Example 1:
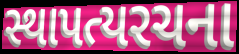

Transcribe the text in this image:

સ્થાપત્યરચના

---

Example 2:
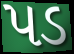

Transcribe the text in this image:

પડ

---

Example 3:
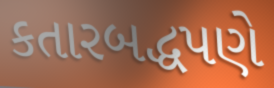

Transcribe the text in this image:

કતારબદ્ધપણે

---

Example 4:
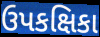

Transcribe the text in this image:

ઉપકક્ષિકા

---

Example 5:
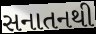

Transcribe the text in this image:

સનાતનથી